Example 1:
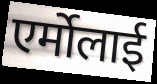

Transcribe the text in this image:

एर्मोलाई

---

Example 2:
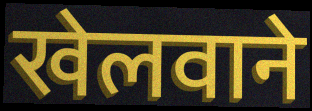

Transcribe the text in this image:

खेलवाने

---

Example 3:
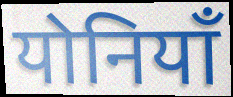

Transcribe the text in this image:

योनियाँ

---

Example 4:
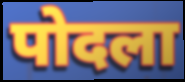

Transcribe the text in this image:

पोदला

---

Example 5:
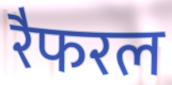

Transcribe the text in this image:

रैफरल